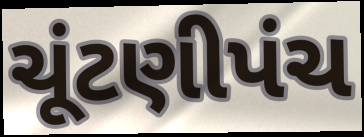
ચૂંટણીપંચ